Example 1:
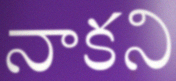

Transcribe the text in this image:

నాకని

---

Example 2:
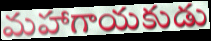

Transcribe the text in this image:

మహాగాయకుడు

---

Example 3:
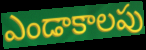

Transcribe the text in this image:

ఎండాకాలపు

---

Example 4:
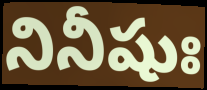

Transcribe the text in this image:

నినీషుః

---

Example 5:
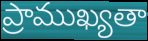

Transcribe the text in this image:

ప్రాముఖ్యతా